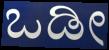
ಒಡೀ